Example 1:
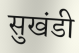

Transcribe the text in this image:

सुखंडी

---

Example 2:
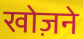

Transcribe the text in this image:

खोज़ने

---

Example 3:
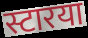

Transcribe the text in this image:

स्टारया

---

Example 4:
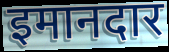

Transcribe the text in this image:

इमानदार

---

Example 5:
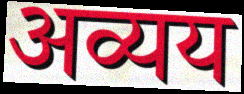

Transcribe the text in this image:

अव्यय